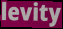
levity